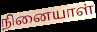
நினையாள்